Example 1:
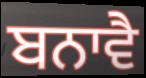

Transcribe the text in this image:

ਬਨਾਵੈ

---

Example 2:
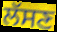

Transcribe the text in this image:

ਲੱਸਣ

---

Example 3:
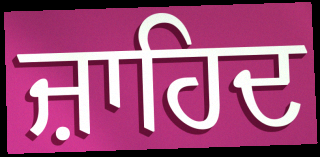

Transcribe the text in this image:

ਜ਼ਾਹਿਦ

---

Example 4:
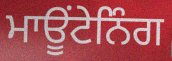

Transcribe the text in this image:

ਮਾਊਂਟੇਨਿੰਗ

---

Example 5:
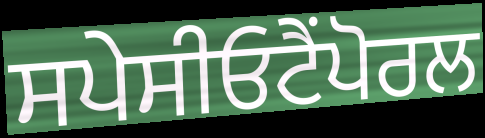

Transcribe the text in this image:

ਸਪੇਸੀਓਟੈਂਪੋਰਲ